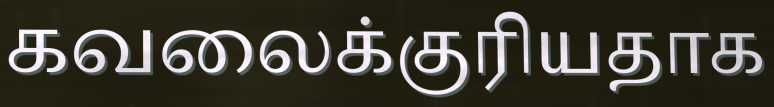
கவலைக்குரியதாக